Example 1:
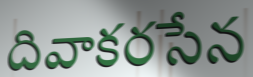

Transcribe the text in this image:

దివాకరసేన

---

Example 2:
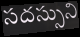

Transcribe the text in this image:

సదస్సుని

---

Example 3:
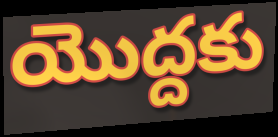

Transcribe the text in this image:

యొద్దకు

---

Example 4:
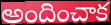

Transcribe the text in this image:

అందించాక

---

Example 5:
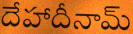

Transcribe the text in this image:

దేహాదీనామ్